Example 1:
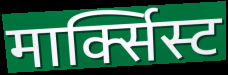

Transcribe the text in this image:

मार्क्सिस्ट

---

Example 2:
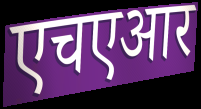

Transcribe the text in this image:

एचएआर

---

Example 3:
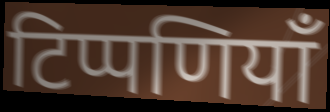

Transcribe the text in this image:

टिप्पणियाँ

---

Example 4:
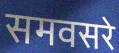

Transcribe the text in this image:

समवसरे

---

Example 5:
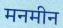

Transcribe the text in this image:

मनमीन